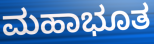
ಮಹಾಭೂತ